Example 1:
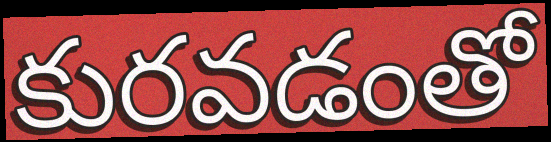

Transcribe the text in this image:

కురవడంతో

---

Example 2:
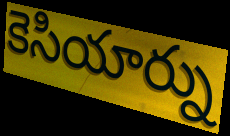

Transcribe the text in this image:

కెసియార్ను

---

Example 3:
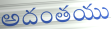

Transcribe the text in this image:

అదంతయు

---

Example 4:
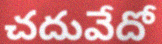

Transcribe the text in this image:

చదువేదో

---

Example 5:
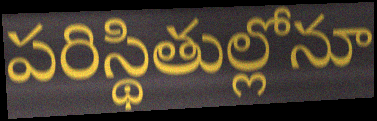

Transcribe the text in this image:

పరిస్థితుల్లోనూ